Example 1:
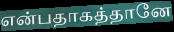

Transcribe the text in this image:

என்பதாகத்தானே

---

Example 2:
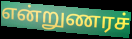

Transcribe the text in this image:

என்றுணரச்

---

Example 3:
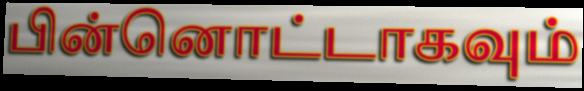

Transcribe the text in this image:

பின்னொட்டாகவும்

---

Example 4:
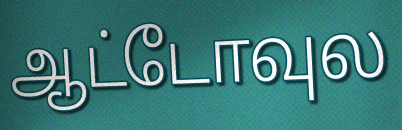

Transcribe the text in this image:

ஆட்டோவுல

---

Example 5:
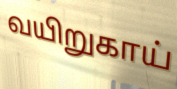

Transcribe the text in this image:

வயிறுகாய்